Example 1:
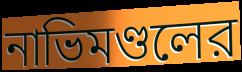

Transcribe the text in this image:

নাভিমণ্ডলের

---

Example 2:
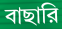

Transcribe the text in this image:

বাছারি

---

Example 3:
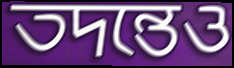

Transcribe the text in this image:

তদন্তেও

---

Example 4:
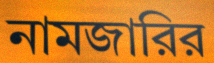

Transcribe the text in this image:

নামজারির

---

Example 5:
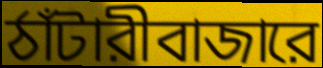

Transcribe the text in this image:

ঠাঁটারীবাজারে